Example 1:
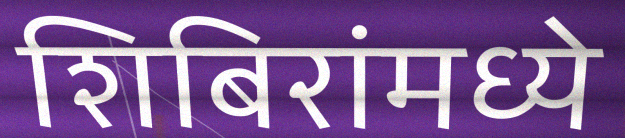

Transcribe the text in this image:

शिबिरांमध्ये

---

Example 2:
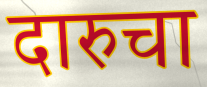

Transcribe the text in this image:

दारुचा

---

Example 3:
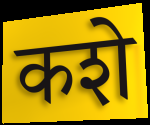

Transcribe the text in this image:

कशे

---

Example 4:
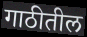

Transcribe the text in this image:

गाठीतील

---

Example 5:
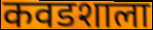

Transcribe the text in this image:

कवडशाला